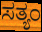
ಸತ್ಯಂ